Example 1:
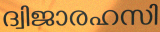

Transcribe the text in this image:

ദ്വിജാരഹസി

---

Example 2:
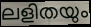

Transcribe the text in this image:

ലളിതയും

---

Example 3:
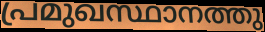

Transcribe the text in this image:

പ്രമുഖസ്ഥാനത്തു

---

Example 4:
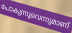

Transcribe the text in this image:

പോകുന്നുവെന്നുമാണ്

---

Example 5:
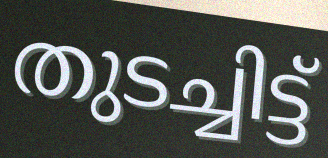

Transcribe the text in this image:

തുടച്ചിട്ട്